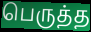
பெருத்த